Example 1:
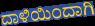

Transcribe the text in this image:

ದಾಳಿಯಿಂದಾಗಿ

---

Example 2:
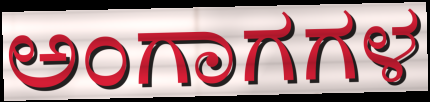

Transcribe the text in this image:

ಅಂಗಾಗಗಳ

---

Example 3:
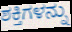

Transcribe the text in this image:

ಶಕ್ತಿಗಳನ್ನು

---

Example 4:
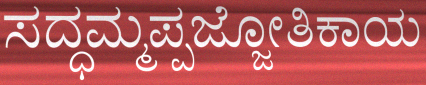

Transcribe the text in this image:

ಸದ್ಧಮ್ಮಪ್ಪಜ್ಜೋತಿಕಾಯ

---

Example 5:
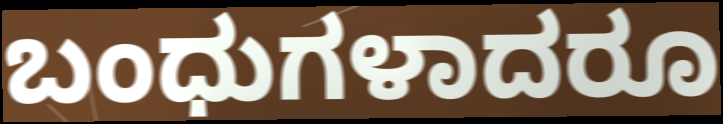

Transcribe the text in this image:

ಬಂಧುಗಳಾದರೂ